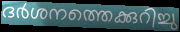
ദർശനത്തെക്കുറിച്ചു